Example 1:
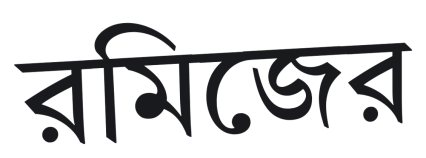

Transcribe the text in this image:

রমিজের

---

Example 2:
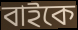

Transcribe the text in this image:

বাইকে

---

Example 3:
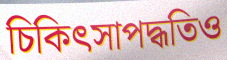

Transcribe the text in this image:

চিকিৎসাপদ্ধতিও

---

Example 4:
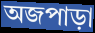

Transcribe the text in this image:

অজপাড়া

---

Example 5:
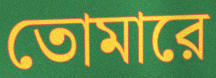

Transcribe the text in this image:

তোমারে